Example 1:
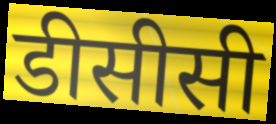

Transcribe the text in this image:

डीसीसी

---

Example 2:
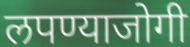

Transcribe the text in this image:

लपण्याजोगी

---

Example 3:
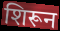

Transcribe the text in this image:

शिरून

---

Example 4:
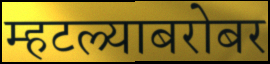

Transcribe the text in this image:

म्हटल्याबरोबर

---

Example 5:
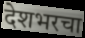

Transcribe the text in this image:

देशभरचा